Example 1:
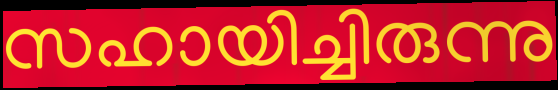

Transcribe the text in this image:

സഹായിച്ചിരുന്നു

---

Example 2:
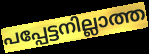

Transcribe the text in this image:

പപ്പേട്ടനില്ലാത്ത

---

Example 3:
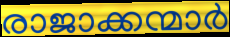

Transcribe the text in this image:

രാജാക്കന്മാർ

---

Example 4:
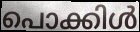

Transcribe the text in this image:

പൊക്കിൾ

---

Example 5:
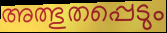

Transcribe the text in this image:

അത്ഭുതപ്പെടും